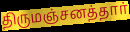
திருமஞ்சனத்தார்